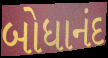
બોધાનંદ